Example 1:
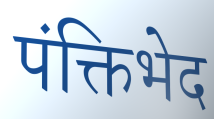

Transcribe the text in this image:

पंक्तिभेद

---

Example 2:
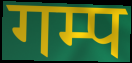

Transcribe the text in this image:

गम्प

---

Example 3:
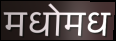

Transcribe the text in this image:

मधोमध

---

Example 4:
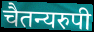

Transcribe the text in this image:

चैतन्यरुपी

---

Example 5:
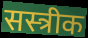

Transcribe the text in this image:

सस्त्रीक